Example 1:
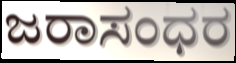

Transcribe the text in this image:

ಜರಾಸಂಧರ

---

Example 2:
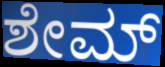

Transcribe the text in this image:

ಶೇಮ್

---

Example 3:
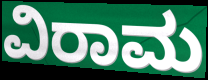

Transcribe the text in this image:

ವಿರಾಮ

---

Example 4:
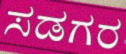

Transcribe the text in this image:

ಸಡಗರ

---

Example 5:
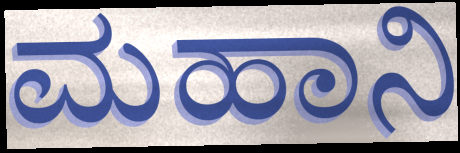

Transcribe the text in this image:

ಮಹಾನಿ